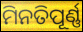
ମିନତିପୂର୍ଣ୍ଣ